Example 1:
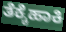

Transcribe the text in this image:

ತೆಕ್ಕೆಹಾಕಿ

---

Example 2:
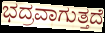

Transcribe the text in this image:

ಭದ್ರವಾಗುತ್ತದೆ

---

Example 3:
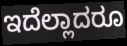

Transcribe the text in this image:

ಇದೆಲ್ಲಾದರೂ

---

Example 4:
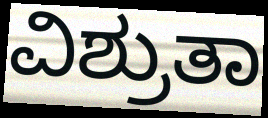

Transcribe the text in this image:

ವಿಶ್ರುತಾ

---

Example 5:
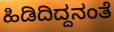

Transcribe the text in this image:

ಹಿಡಿದಿದ್ದನಂತೆ